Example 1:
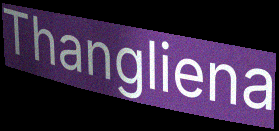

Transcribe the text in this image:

Thangliena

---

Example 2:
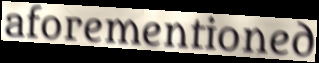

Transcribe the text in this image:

aforementioned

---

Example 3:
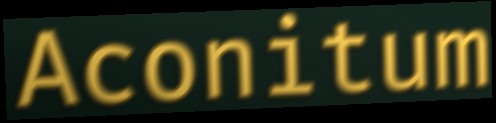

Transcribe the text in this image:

Aconitum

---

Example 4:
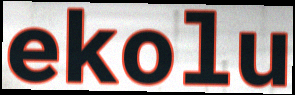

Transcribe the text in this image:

ekolu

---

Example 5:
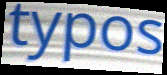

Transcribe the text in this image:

typos